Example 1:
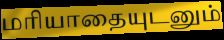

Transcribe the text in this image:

மரியாதையுடனும்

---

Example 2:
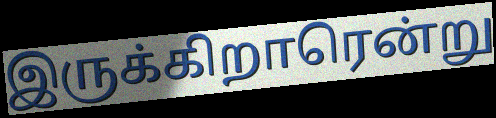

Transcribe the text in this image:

இருக்கிறாரென்று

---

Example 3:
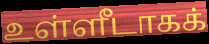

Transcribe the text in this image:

உள்ளீடாகக்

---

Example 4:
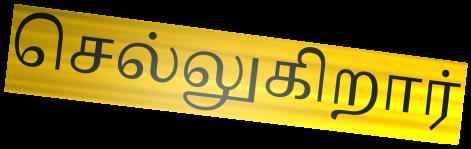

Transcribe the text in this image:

செல்லுகிறார்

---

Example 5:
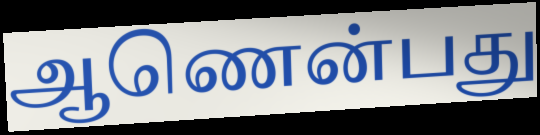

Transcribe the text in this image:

ஆணென்பது